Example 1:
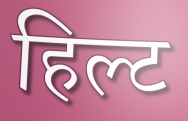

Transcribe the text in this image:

हिल्ट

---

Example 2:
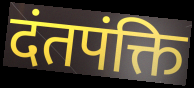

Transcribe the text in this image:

दंतपंक्ति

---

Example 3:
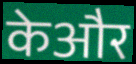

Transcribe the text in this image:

केऔर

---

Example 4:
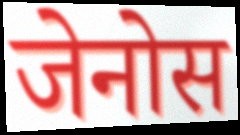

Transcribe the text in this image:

जेनोस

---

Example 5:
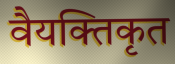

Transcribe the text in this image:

वैयक्तिकृत